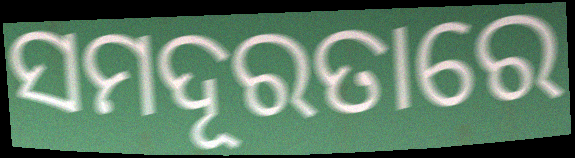
ସମଦୂରତାରେ